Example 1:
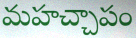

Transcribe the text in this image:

మహచ్చాపం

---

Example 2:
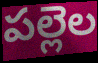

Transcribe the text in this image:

పల్లెల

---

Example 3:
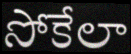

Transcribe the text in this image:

సోకేలా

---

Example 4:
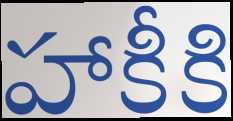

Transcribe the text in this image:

హాకీకి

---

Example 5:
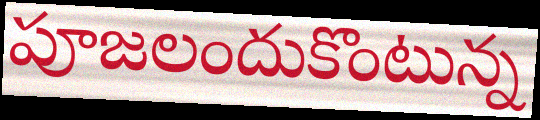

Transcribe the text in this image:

పూజలందుకొంటున్న